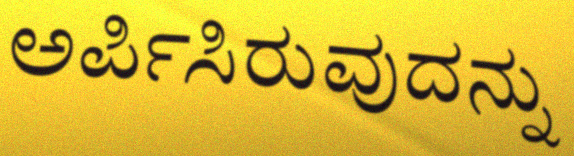
ಅರ್ಪಿಸಿರುವುದನ್ನು